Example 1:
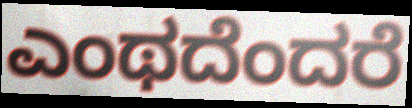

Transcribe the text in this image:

ಎಂಥದೆಂದರೆ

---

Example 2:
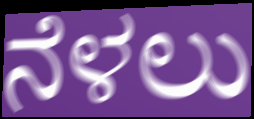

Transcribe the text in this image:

ನೆಳಲು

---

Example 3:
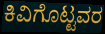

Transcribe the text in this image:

ಕಿವಿಗೊಟ್ಟವರ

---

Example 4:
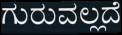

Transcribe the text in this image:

ಗುರುವಲ್ಲದೆ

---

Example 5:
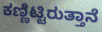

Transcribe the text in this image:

ಕಣ್ಣಿಟ್ಟಿರುತ್ತಾನೆ